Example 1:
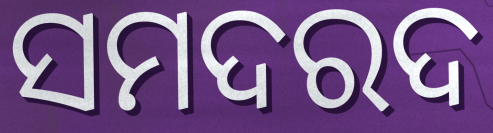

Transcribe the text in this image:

ସମଦରଦ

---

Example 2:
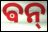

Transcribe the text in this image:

ଵନ୍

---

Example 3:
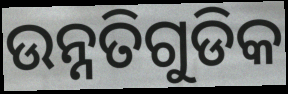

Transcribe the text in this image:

ଉନ୍ନତିଗୁଡିକ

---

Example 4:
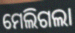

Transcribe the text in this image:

ମେଲିଗଲା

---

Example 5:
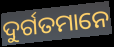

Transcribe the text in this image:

ଦୁର୍ଗତମାନେ